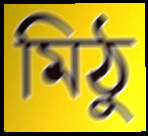
মিঠু